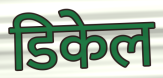
डिकेल